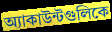
অ্যাকাউন্টগুলিকে